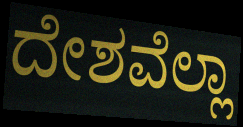
ದೇಶವೆಲ್ಲಾ